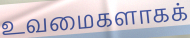
உவமைகளாகக்